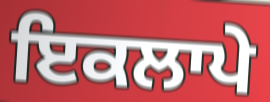
ਇਕਲਾਪੇ